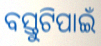
ବସ୍ତୁଟିପାଇଁ